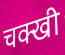
चक्खी